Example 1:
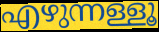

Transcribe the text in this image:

എഴുന്നള്ളൂ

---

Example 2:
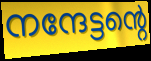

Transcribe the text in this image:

നന്ദേട്ടന്റെ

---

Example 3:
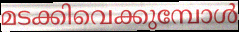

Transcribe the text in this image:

മടക്കിവെക്കുമ്പോൾ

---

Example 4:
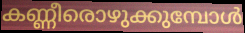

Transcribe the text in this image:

കണ്ണീരൊഴുക്കുമ്പോൾ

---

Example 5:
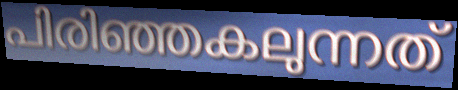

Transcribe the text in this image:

പിരിഞ്ഞകലുന്നത്